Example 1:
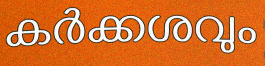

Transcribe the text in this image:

കർക്കശവും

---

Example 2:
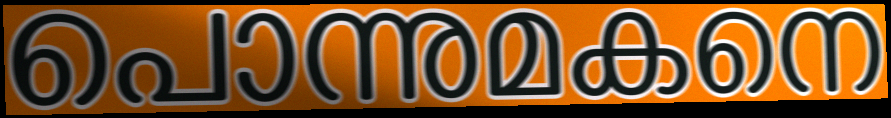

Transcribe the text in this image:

പൊന്നുമകനെ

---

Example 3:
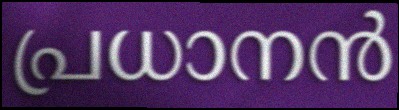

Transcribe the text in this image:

പ്രധാനൻ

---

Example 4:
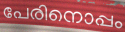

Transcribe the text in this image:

പേരിനൊപ്പം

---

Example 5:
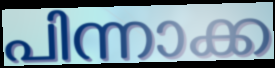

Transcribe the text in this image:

പിന്നാക്ക